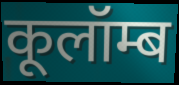
कूलॉम्ब